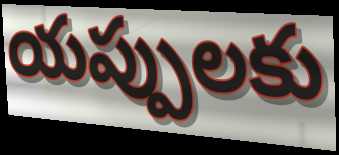
యప్పులకు